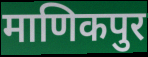
माणिकपुर